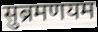
सुब्रमणयम